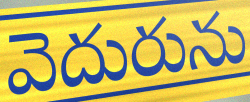
వెదురును